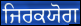
ਜਿਰਕਯੋਗ